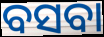
ବସବା